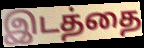
இடத்தை